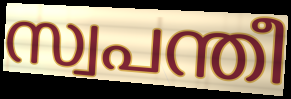
സ്വപന്തീ